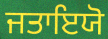
ਜਤਾਇਯੋ